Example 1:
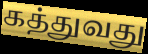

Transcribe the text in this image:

கத்துவது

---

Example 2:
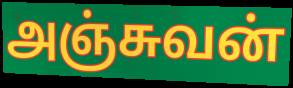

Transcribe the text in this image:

அஞ்சுவன்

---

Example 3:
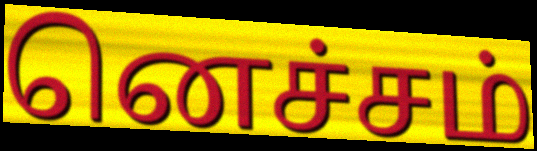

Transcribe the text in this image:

னெச்சம்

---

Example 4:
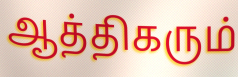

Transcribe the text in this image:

ஆத்திகரும்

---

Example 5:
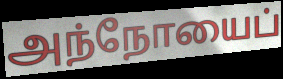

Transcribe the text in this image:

அந்நோயைப்